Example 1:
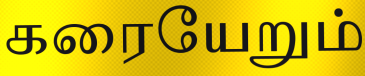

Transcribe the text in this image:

கரையேறும்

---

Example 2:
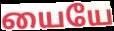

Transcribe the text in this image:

யையே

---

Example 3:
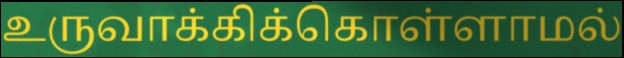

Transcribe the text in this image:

உருவாக்கிக்கொள்ளாமல்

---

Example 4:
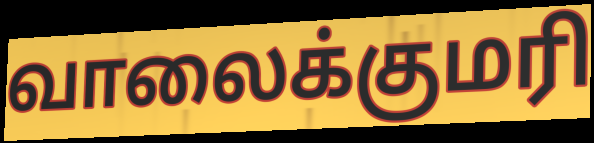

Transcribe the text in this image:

வாலைக்குமரி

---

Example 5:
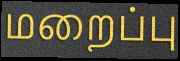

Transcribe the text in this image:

மறைப்பு